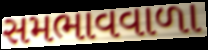
સમભાવવાળા